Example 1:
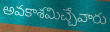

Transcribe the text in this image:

అవకాశమిచ్చేవారు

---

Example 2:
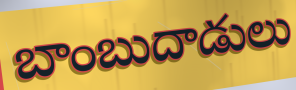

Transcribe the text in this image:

బాంబుదాడులు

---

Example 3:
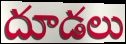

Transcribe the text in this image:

దూడలు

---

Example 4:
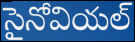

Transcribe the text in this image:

సైనోవియల్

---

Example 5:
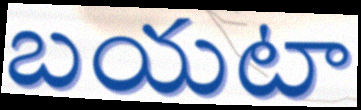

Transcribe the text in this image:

బయటా